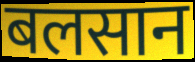
बलसान